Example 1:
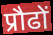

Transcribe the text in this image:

प्रौढों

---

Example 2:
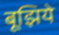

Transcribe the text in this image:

बूझिये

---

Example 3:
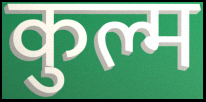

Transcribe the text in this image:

कुल्म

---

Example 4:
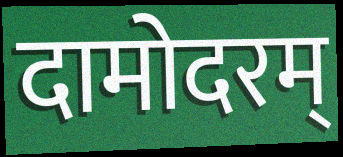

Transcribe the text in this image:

दामोदरम्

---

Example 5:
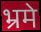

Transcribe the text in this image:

भ्रमे